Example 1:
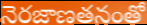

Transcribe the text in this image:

నెరజాణతనంతో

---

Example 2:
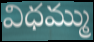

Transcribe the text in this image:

విధమ్ము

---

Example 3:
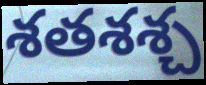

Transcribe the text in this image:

శతశశ్చ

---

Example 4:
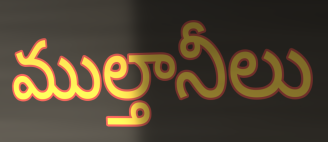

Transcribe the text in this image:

ముల్తానీలు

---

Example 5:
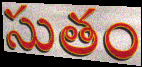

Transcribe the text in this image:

సుతం